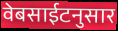
वेबसाईटनुसार